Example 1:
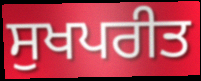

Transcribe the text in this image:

ਸੁਖਪਰੀਤ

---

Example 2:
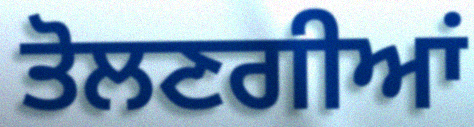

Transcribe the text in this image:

ਤੋਲਣਗੀਆਂ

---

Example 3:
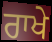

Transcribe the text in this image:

ਰਾਖੇ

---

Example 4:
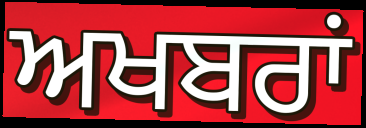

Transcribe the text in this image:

ਅਖਬਰਾਂ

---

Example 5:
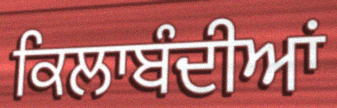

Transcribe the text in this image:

ਕਿਲਾਬੰਦੀਆਂ